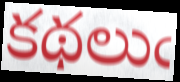
కథలుఁ